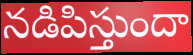
నడిపిస్తుందా